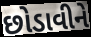
છોડાવીને